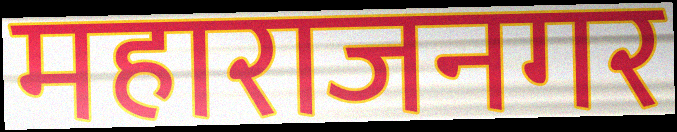
महाराजनगर